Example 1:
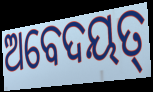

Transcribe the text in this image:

ଅବେଦୟତ୍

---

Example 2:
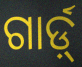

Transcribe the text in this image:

ଗାର୍ଡ଼୍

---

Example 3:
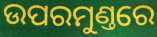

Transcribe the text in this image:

ଉପରମୁଣ୍ତରେ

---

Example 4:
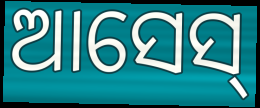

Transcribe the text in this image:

ଆସେସ୍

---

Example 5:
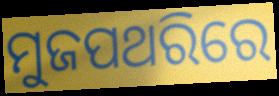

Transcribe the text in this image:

ମୁଜପଥରିରେ